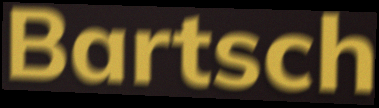
Bartsch